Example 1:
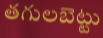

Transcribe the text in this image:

తగులబెట్టు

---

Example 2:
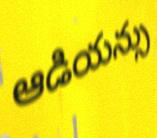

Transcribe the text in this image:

ఆడియన్సు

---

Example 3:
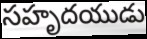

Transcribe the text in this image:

సహృదయుడు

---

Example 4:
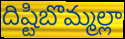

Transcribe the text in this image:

దిష్టిబొమ్మల్లా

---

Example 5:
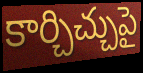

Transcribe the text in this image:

కార్చిచ్చుపై